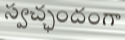
స్వచ్ఛందంగా